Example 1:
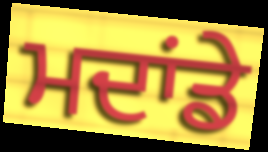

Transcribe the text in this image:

ਮਦਾਂਡੇ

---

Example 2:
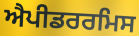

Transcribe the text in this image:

ਐਪੀਡਰਰਮਿਸ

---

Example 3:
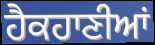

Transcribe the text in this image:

ਹੈਕਹਾਣੀਆਂ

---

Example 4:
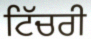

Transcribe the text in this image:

ਟਿੱਚਰੀ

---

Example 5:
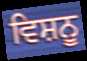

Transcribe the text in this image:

ਵਿਸ਼ਨੂ